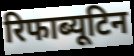
रिफाब्यूटिन